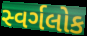
સ્વર્ગલોક